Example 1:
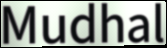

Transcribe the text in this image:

Mudhal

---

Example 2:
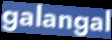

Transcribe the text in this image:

galangal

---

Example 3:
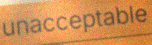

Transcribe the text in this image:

unacceptable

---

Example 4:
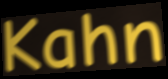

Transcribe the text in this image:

Kahn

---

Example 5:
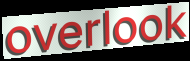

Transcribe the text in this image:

overlook